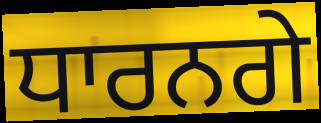
ਧਾਰਨਗੇ